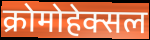
क्रोमोहेक्सल